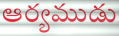
ఆర్యముడు